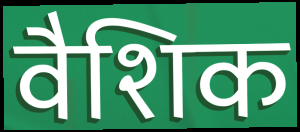
वैशिक